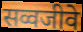
सव्वजीवे